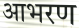
आभरण